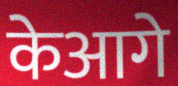
केआगे